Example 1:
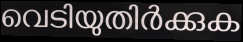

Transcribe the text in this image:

വെടിയുതിർക്കുക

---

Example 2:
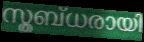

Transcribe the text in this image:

സ്തബ്ധരായി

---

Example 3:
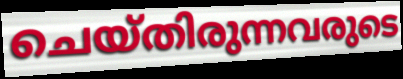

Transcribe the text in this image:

ചെയ്തിരുന്നവരുടെ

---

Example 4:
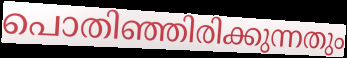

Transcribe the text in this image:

പൊതിഞ്ഞിരിക്കുന്നതും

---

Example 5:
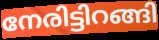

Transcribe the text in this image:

നേരിട്ടിറങ്ങി